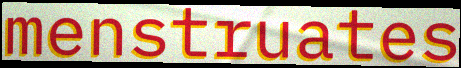
menstruates